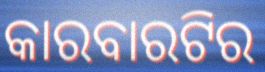
କାରବାରଟିର